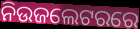
ନିଉଜଲେଟରରେ